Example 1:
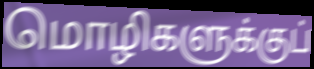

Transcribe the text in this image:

மொழிகளுக்குப்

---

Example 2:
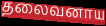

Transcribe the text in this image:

தலைவனாய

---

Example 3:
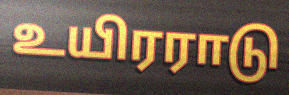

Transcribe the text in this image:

உயிரராடு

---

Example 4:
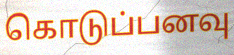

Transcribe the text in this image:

கொடுப்பனவு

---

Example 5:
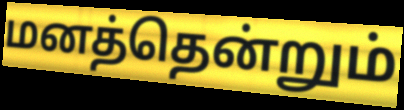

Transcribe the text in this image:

மனத்தென்றும்